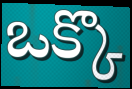
ఒక్కొ